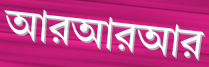
আরআরআর